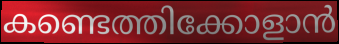
കണ്ടെത്തിക്കോളാൻ